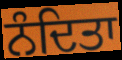
ਨੰਦਿਤਾ